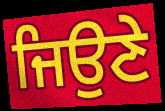
ਜਿਉਣੇ